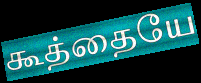
கூத்தையே